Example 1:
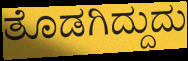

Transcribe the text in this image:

ತೊಡಗಿದ್ದುದು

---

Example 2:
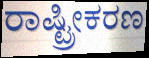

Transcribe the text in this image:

ರಾಷ್ಟ್ರೀಕರಣ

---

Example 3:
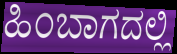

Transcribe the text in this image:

ಹಿಂಬಾಗದಲ್ಲಿ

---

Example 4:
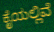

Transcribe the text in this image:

ಕೈಯಲ್ಲಿವೆ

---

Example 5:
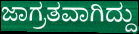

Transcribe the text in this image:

ಜಾಗ್ರತವಾಗಿದ್ದು